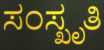
ಸಂಸ್ಖೃತಿ